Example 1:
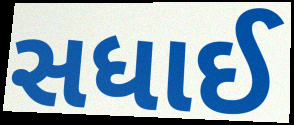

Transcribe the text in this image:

સધાઈ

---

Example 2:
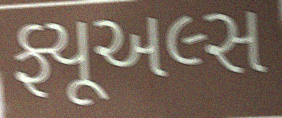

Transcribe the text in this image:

ફ્યૂઅલ્સ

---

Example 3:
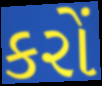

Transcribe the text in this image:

કરોં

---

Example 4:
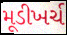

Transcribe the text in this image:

મૂડીખર્ચ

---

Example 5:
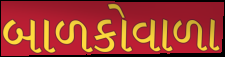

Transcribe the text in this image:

બાળકોવાળા